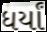
ધર્યાં